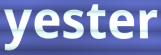
yester